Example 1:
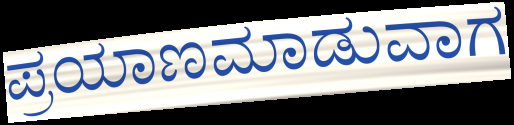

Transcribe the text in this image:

ಪ್ರಯಾಣಮಾಡುವಾಗ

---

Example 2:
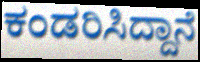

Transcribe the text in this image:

ಕಂಡರಿಸಿದ್ದಾನೆ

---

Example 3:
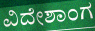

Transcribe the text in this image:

ವಿದೇಶಾಂಗ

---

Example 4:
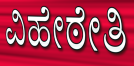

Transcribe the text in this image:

ವಿಹೇಠೇತಿ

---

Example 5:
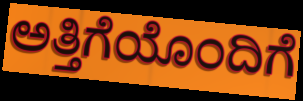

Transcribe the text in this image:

ಅತ್ತಿಗೆಯೊಂದಿಗೆ